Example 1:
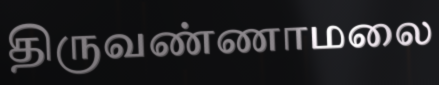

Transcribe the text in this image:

திருவண்ணாமலை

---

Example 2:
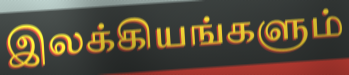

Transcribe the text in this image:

இலக்கியங்களும்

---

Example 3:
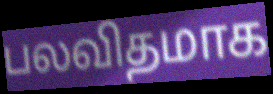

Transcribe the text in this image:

பலவிதமாக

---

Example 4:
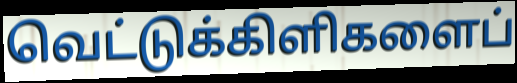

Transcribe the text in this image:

வெட்டுக்கிளிகளைப்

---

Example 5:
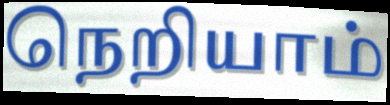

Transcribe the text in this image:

நெறியாம்